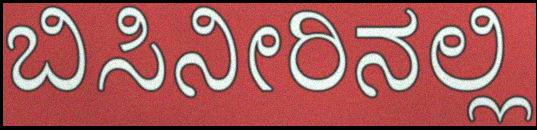
ಬಿಸಿನೀರಿನಲ್ಲಿ